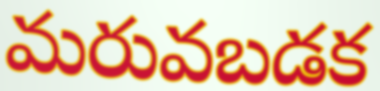
మరువబడక